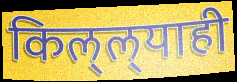
किल्ल्याही